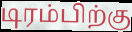
டிரம்பிற்கு